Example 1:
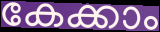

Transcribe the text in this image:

കേക്കാം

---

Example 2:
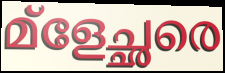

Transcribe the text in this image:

മ്ളേച്ഛരെ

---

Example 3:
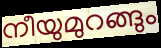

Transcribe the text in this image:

നീയുമുറങ്ങും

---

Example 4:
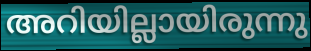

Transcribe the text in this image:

അറിയില്ലായിരുന്നു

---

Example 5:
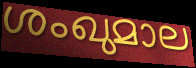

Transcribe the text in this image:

ശംഖുമാല